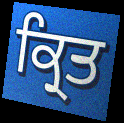
ਕ੍ਰਿਤ